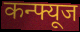
कन्फ्यूज